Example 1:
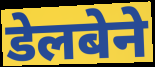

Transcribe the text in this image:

डेलबेने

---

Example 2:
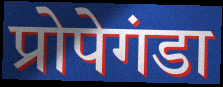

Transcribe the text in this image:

प्रोपेगंडा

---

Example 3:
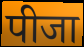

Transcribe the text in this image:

पीजा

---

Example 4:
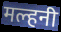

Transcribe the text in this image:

मल्हनी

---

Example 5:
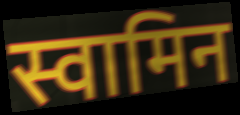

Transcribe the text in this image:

स्वामिन